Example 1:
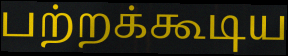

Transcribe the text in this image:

பற்றக்கூடிய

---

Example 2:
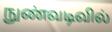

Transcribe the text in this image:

நுண்வடிவில்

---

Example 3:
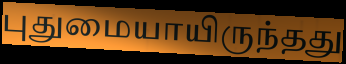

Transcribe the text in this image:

புதுமையாயிருந்தது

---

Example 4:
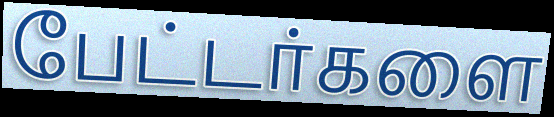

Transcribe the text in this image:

பேட்டர்களை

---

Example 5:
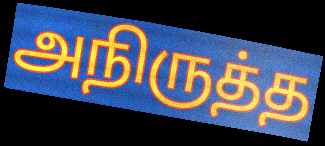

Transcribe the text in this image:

அநிருத்த